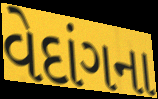
વેદાંગના